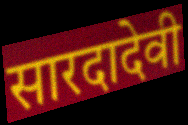
सारदादेवी